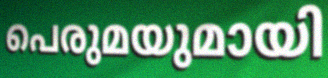
പെരുമയുമായി